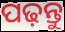
ପଢ଼ନ୍ତୁ